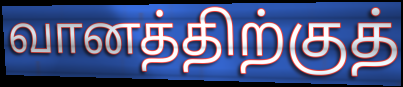
வானத்திற்குத்